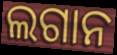
ଲଗାନ